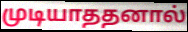
முடியாததனால்